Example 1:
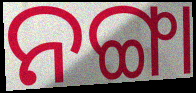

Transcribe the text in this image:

ନଙ୍ଗା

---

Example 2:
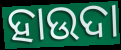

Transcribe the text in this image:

ହାଉଦା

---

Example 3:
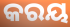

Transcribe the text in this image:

କରୟ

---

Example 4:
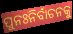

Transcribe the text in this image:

ପୁନଃନିର୍ବାଚନକୁ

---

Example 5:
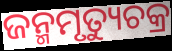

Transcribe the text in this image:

ଜନ୍ମମୃତ୍ୟୁଚକ୍ର